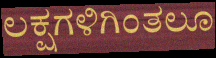
ಲಕ್ಷಗಳಿಗಿಂತಲೂ